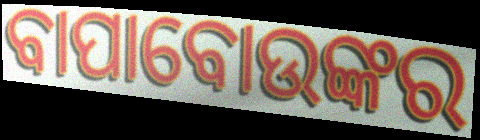
ବାପାବୋଉଙ୍କର